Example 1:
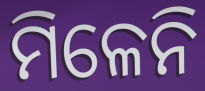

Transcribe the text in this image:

ମିଳେନି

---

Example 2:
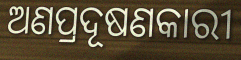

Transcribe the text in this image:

ଅଣପ୍ରଦୂଷଣକାରୀ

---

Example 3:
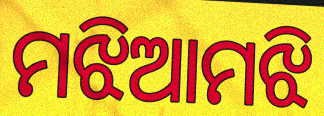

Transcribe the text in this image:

ମଝିଆମଝି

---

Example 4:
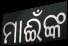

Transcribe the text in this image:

ମାଈଁଙ୍କ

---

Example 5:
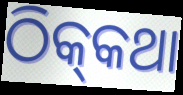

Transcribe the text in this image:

ଠିକ୍‌କଥା